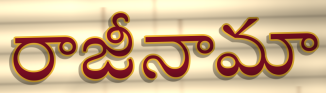
రాజీనామా